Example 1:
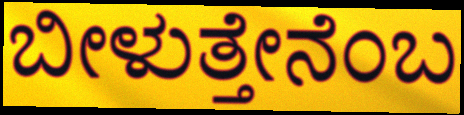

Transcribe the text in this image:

ಬೀಳುತ್ತೇನೆಂಬ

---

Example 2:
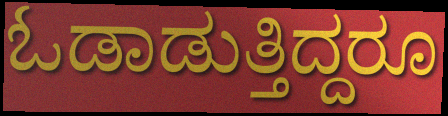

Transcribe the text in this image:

ಓಡಾಡುತ್ತಿದ್ದರೂ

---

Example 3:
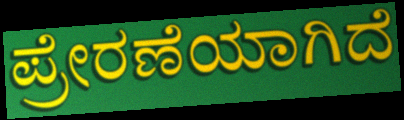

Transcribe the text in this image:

ಪ್ರೇರಣೆಯಾಗಿದೆ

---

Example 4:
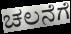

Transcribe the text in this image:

ಚಲನೆಗೆ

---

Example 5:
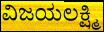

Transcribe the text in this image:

ವಿಜಯಲಕ್ಷ್ಮಿ